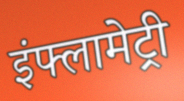
इंफ्लामेट्री